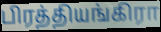
பிரத்தியங்கிரா